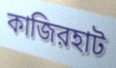
কাজিরহাট